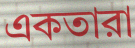
একতারা